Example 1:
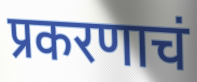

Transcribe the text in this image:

प्रकरणाचं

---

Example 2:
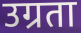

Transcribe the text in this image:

उग्रता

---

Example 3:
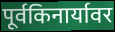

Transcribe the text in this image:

पूर्वकिनार्यावर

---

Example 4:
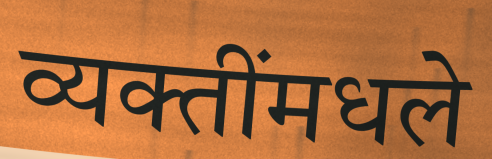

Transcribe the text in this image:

व्यक्तींमधले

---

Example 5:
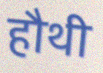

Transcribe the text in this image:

हौथी